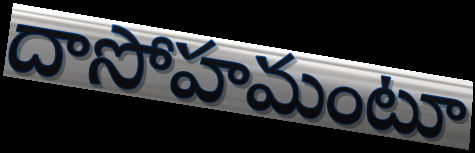
దాసోహమంటూ